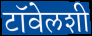
टॉवेलशी